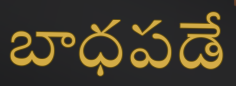
బాధపడే